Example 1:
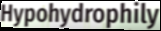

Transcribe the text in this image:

Hypohydrophily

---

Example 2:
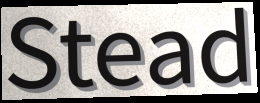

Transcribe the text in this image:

Stead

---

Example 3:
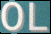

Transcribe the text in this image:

OL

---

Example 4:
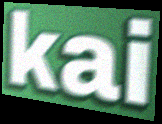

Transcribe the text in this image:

kai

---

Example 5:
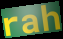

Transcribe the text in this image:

rah